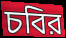
চবির